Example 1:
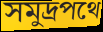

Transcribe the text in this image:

সমুদ্রপথে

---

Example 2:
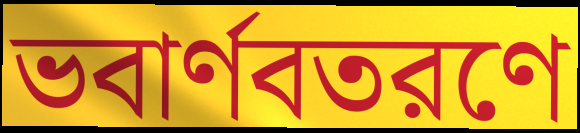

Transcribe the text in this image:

ভবার্ণবতরণে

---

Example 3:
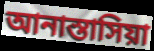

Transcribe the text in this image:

আনাস্তাসিয়া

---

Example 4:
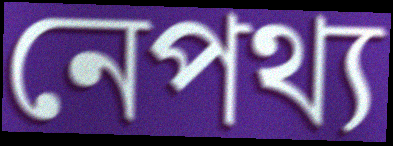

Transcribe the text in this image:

নেপথ্য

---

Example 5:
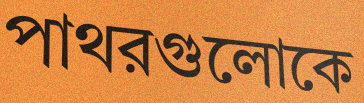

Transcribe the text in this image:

পাথরগুলোকে